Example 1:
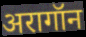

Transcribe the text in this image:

अरागॉन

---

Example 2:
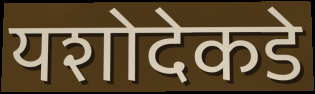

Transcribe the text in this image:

यशोदेकडे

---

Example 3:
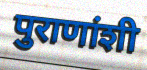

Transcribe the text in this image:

पुराणांशी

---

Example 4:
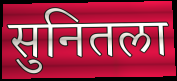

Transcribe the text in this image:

सुनितला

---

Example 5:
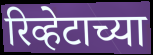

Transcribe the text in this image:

रिव्हेटाच्या